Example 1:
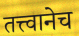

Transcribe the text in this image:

तत्त्वानेच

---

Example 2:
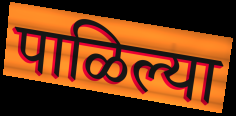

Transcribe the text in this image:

पाळिल्या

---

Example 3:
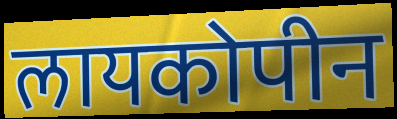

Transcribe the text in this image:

लायकोपीन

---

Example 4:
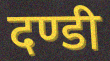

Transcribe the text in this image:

दण्डी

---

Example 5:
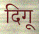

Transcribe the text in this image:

दिगू